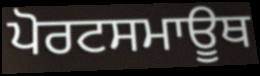
ਪੋਰਟਸਮਾਊਥ